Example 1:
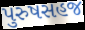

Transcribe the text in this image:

પુરુષસહજ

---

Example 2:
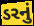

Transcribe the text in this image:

ડરનું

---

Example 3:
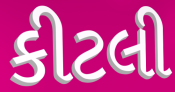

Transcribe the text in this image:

કીટલી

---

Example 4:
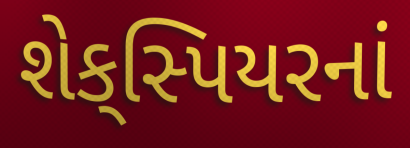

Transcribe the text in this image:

શેક્‌સ્પિયરનાં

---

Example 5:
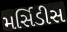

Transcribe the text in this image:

મર્સિડીસ